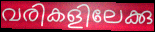
വരികളിലേക്കു